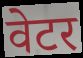
वेटर